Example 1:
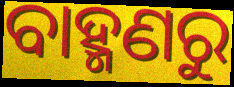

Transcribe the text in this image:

ବାହ୍ମଣରୁ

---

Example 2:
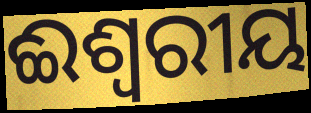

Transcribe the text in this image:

ଈଶ୍ବରୀୟ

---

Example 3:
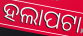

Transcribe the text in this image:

ହଲାପଟା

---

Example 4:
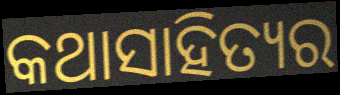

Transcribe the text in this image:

କଥାସାହିତ୍ୟର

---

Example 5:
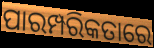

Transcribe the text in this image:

ପାରମ୍ପରିକତାରେ